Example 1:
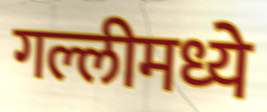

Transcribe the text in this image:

गल्लीमध्ये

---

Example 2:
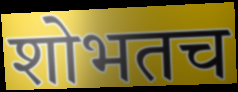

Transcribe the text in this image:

शोभतच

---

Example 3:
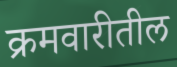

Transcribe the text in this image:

क्रमवारीतील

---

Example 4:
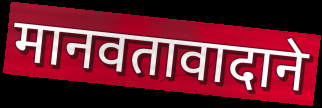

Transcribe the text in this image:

मानवतावादाने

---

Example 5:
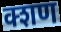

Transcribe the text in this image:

क्शण